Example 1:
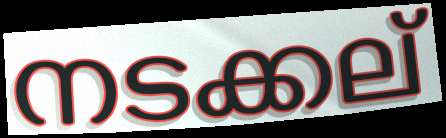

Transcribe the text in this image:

നടക്കല്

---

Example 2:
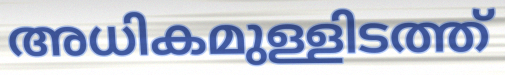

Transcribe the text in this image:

അധികമുള്ളിടത്ത്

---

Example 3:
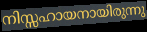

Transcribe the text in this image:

നിസ്സഹായനായിരുന്നു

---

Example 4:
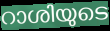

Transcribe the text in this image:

റാശിയുടെ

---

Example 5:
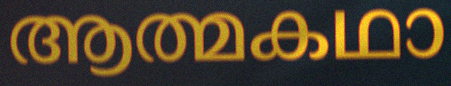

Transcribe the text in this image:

ആത്മകഥാ